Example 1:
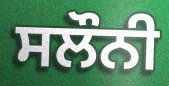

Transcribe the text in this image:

ਸਲੌਨੀ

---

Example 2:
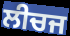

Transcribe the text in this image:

ਲੀਚਜ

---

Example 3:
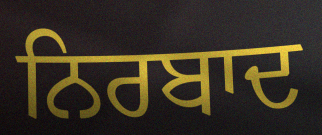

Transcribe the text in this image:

ਨਿਰਬਾਦ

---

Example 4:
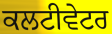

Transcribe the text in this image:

ਕਲਟੀਵੇਟਰ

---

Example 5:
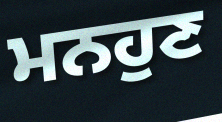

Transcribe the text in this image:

ਮਨਹੁਣ